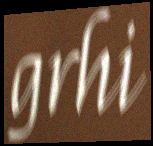
grhi